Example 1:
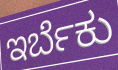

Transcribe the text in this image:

ಇರ್ಬೆಕು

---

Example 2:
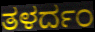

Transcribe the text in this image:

ತಳರ್ದಂ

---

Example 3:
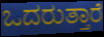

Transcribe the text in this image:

ಒದರುತ್ತಾರೆ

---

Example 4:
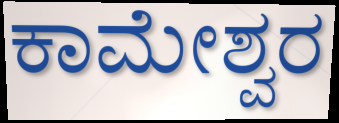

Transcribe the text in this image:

ಕಾಮೇಶ್ವರ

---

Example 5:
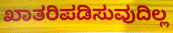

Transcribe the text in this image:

ಖಾತರಿಪಡಿಸುವುದಿಲ್ಲ